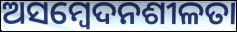
ଅସମ୍ବେଦନଶୀଳତା